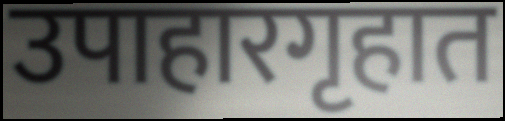
उपाहारगृहात